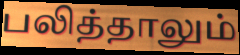
பலித்தாலும்